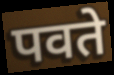
पवते